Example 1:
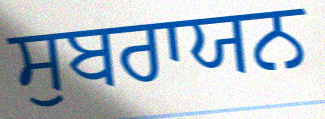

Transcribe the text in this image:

ਸੁਬਰਾਯਨ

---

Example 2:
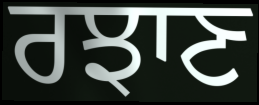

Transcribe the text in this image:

ਰਝਾਣ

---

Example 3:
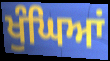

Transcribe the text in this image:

ਖੁੰਘਿਆਂ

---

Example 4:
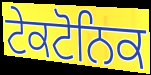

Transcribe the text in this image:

ਟੇਕਟੋਨਿਕ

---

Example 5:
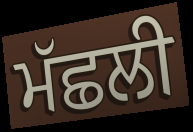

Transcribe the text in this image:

ਮੱਛਲੀ